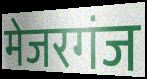
मेजरगंज